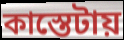
কাস্তেটায়